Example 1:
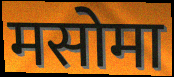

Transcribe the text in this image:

मसोमा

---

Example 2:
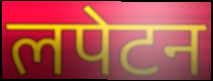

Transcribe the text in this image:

लपेटन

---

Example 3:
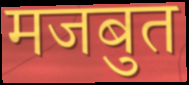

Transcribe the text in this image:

मजबुत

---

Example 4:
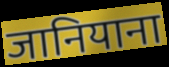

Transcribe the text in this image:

जानियाना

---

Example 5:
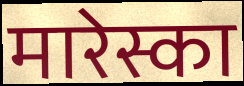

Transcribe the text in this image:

मारेस्का